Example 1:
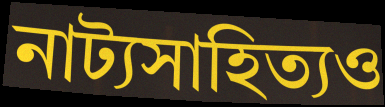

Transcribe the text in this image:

নাট্যসাহিত্যও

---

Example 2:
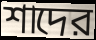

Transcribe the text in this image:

শাদের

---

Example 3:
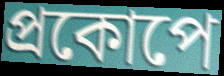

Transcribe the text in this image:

প্রকোপে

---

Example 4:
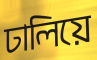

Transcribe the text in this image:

ঢালিয়ে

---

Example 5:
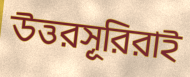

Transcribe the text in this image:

উত্তরসূরিরাই